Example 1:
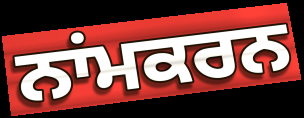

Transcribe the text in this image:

ਨਾਂਮਕਰਨ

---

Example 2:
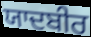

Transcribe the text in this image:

ਯਾਦਬੀਰ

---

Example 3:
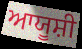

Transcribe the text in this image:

ਆਯੂਸ਼ੀ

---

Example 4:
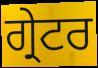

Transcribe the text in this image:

ਗ੍ਰੇਟਰ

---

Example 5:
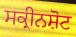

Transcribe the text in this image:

ਸਕ੍ਰੀਨਸ਼ੋਟ